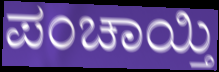
ಪಂಚಾಯ್ತಿ